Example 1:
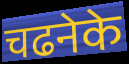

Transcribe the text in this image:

चढनेके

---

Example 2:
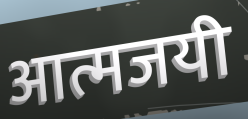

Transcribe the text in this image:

आत्मजयी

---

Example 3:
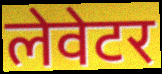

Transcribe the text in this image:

लेवेटर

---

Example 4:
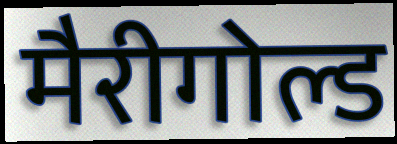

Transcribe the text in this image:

मैरीगोल्ड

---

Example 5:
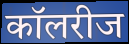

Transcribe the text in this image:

कॉलरीज